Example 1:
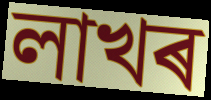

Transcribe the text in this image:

লাখৰ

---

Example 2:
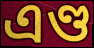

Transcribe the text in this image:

এণ্ড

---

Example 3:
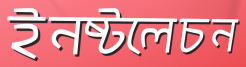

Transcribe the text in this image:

ইনষ্টলেচন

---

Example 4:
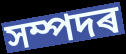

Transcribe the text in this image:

সম্পদৰ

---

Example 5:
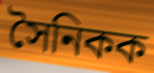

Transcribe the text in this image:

সৈনিকক